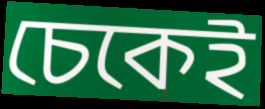
চেকেই